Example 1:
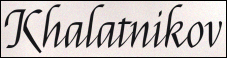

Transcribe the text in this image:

Khalatnikov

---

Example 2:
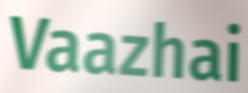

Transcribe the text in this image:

Vaazhai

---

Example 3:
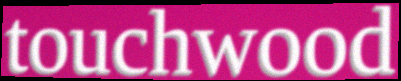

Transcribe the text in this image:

touchwood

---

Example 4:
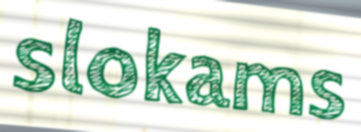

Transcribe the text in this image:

slokams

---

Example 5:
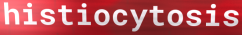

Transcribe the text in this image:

histiocytosis